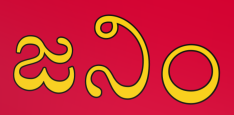
జనిం